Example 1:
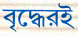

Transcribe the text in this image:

বৃদ্ধেরই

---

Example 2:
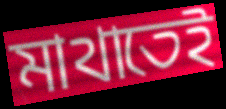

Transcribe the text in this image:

মাথাতেই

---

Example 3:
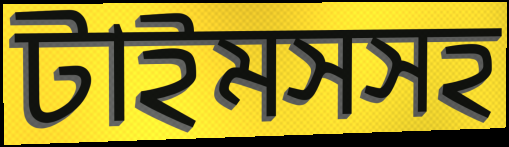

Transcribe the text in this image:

টাইমসসহ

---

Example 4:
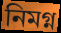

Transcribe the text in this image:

নিমগ্ন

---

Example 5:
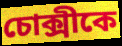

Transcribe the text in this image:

চোক্সীকে